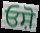
ਓਸ਼ੋ